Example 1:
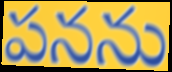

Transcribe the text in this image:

పనను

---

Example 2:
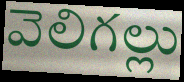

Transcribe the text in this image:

వెలిగల్లు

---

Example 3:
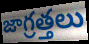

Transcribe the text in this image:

జాగ్రత్తలు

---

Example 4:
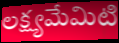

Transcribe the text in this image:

లక్ష్యమేమిటి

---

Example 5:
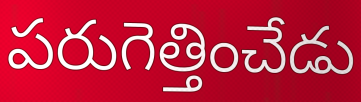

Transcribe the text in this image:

పరుగెత్తించేడు